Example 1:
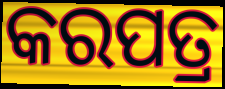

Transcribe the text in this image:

କରପତ୍ର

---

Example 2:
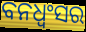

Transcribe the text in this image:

ବନଧ୍ଵଂସର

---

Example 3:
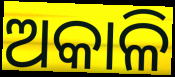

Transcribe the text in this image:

ଅକାଳି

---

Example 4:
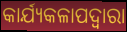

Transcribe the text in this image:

କାର୍ଯ୍ୟକଳାପଦ୍ବାରା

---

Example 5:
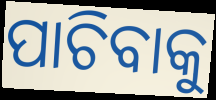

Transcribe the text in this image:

ପାଚିବାକୁ